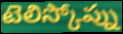
టెలిస్కోప్ను